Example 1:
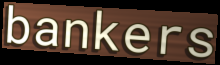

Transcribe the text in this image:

bankers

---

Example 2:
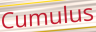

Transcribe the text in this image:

Cumulus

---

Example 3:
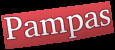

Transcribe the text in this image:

Pampas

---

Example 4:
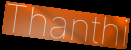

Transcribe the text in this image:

Thanthi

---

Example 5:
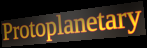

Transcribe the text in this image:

Protoplanetary